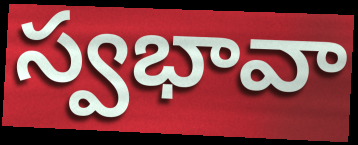
స్వభావా